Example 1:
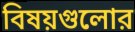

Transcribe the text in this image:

বিষয়গুলোর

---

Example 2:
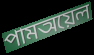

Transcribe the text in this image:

পামঅয়েল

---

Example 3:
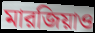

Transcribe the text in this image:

মারজিয়াও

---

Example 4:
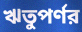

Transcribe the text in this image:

ঋতুপর্ণর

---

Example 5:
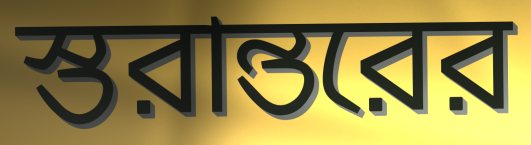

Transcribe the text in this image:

স্তরান্তরের